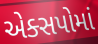
એક્સપોમાં